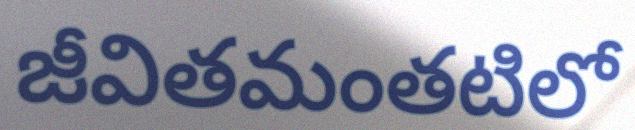
జీవితమంతటిలో